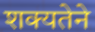
शक्यतेने